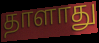
தாளாது